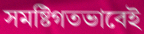
সমষ্টিগতভাবেই